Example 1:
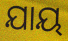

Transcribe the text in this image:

ଯାୟ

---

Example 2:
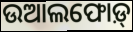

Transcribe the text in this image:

ଉଆଲଫୋଡ଼୍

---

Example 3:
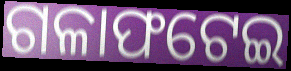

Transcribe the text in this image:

ଗଳାଫଟେଇ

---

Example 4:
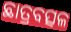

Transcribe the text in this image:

ଛାତ୍ରବତ୍ସଳ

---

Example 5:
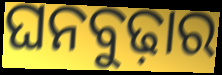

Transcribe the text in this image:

ଘନବୁଢ଼ାର